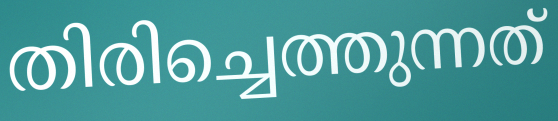
തിരിച്ചെത്തുന്നത്